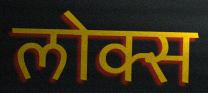
लोक्स